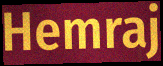
Hemraj